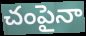
చంపైనా